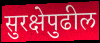
सुरक्षेपुढील